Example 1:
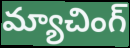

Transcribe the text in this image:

మ్యాచింగ్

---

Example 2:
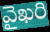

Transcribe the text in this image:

వైఖరి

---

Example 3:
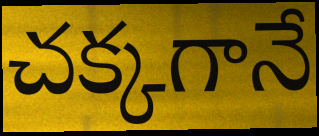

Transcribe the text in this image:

చక్కగానే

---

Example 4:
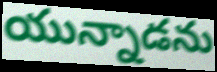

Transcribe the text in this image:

యున్నాడను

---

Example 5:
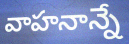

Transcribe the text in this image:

వాహనాన్నే